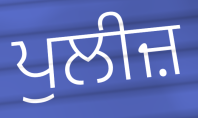
ਪੁਲੀਜ਼